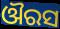
ଔରସ